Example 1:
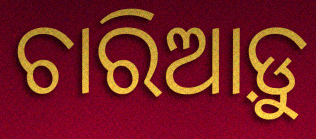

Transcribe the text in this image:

ଚାରିଆଡ଼ୁ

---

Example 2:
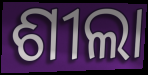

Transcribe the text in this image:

ଶୀଲା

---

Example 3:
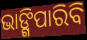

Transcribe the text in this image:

ଭାଙ୍ଗିପାରିବି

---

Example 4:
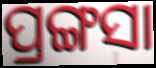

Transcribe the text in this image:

ପ୍ରଙ୍ଗସା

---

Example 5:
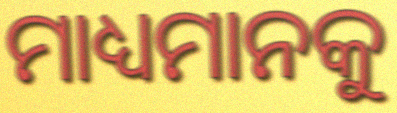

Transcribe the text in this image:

ମାଧ୍ୟମାନକୁ